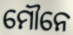
ମୌନେ